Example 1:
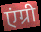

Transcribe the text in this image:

एंग्री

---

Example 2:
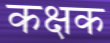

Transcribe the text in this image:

कक्षक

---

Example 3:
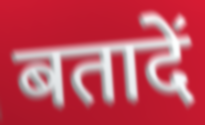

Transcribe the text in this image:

बतादें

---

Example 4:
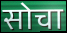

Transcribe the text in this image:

सोचा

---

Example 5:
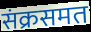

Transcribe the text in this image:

संक्रसमत